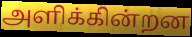
அளிக்கின்றன